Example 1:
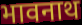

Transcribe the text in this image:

भावनाथ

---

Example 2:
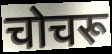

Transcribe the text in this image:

चोचरू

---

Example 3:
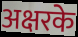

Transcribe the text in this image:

अक्षरके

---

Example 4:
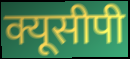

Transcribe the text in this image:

क्यूसीपी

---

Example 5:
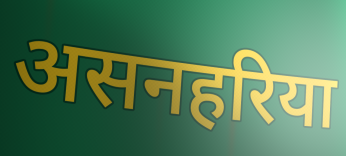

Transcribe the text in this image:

असनहरिया